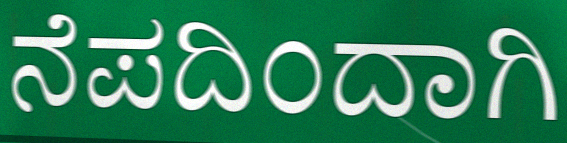
ನೆಪದಿಂದಾಗಿ